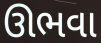
ઊભવા